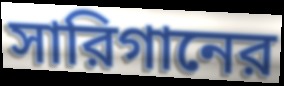
সারিগানের